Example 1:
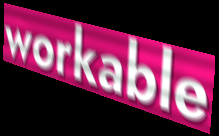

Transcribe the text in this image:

workable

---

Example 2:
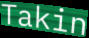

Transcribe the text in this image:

Takin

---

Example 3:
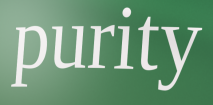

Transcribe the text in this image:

purity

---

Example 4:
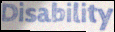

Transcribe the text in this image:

Disability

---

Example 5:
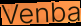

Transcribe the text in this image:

Venba